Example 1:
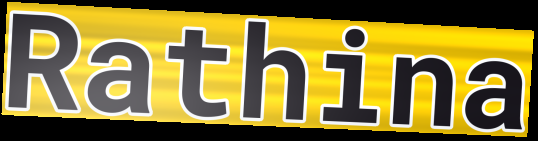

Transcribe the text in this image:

Rathina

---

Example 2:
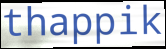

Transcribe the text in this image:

thappik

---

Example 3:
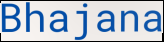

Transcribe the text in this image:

Bhajana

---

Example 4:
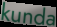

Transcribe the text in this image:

kunda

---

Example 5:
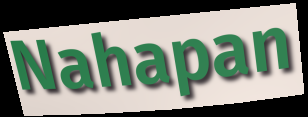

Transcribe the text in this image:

Nahapan